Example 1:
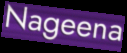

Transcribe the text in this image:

Nageena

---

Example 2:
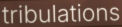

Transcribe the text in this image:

tribulations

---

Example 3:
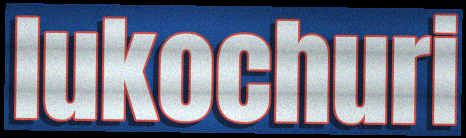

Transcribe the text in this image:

lukochuri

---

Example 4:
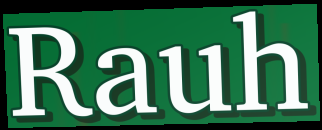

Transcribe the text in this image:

Rauh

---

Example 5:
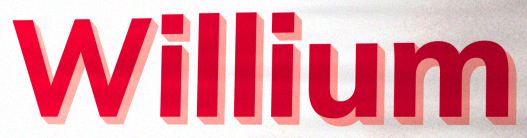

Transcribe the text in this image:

Willium